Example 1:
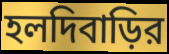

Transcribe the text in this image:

হলদিবাড়ির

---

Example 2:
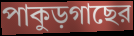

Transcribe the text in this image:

পাকুড়গাছের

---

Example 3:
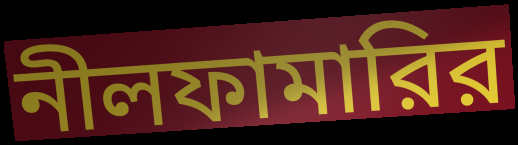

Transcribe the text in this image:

নীলফামারির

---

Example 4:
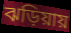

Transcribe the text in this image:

ঝড়িয়ায়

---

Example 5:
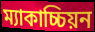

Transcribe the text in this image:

ম্যাকাচ্চিয়ন